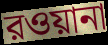
রওয়ানা